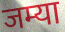
जम्या